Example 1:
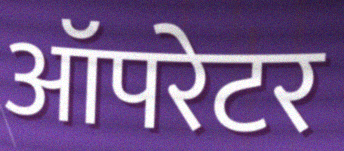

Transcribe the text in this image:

ऑपरेटर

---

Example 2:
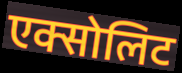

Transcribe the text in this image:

एक्सोलिट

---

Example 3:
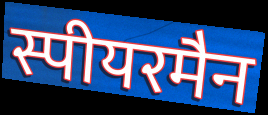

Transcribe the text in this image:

स्पीयरमैन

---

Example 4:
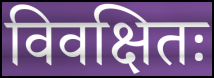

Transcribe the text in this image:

विवक्षितः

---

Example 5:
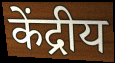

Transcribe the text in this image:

केंद्रीय